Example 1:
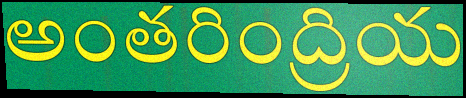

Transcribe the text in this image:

అంతరింద్రియ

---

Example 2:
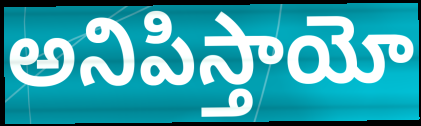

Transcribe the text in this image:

అనిపిస్తాయో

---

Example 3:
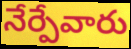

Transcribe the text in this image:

నేర్పేవారు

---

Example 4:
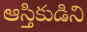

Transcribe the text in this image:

ఆస్తికుడిని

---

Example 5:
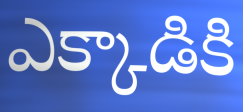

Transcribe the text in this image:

ఎక్కాడికి